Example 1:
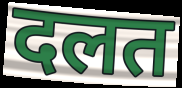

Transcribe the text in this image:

दलत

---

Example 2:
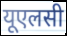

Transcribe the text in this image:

यूएलसी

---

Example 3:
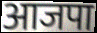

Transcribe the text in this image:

आजपा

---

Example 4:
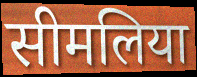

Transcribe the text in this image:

सीमलिया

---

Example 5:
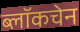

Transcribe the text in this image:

ब्लॉकचेन